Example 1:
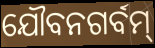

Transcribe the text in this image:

ଯୌବନଗର୍ବମ୍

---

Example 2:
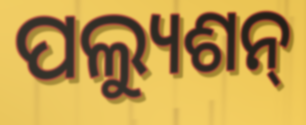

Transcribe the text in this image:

ପଲ୍ୟୁଶନ୍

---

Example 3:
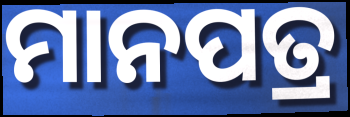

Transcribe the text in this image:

ମାନପତ୍ର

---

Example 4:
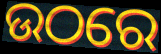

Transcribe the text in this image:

ଉଠରେ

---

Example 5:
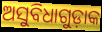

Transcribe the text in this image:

ଅସୁବିଧାଗୁଡ଼ାକ